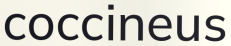
coccineus